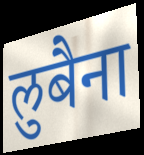
लुबैना